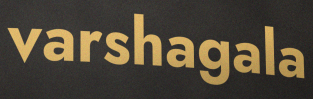
varshagala